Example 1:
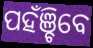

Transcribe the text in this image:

ପହଁଞ୍ଚିବେ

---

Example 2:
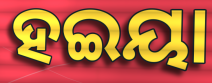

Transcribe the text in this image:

ହଇୟା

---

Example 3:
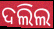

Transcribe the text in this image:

ଦଲିଲ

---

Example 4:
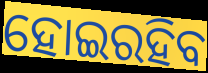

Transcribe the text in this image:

ହୋଇରହିବ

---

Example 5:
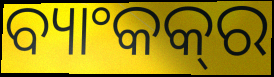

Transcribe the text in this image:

ବ୍ୟାଂକକ୍‍ର